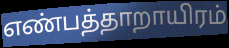
எண்பத்தாறாயிரம்